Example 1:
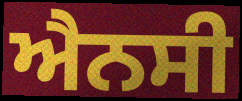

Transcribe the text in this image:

ਐਨਸੀ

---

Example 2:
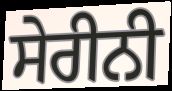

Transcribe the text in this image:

ਸੇਰੀਨੀ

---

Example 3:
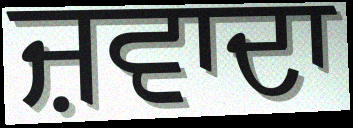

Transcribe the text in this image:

ਜ਼ਵਾਦਾ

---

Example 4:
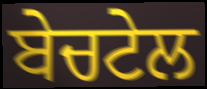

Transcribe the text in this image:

ਬੇਚਟੇਲ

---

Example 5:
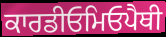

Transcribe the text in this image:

ਕਾਰਡੀਓਮਿਓਪੈਥੀ